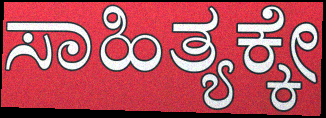
ಸಾಹಿತ್ಯಕ್ಕೇ